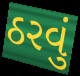
ઠરવું